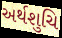
અર્થશુચિ